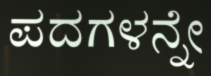
ಪದಗಳನ್ನೇ